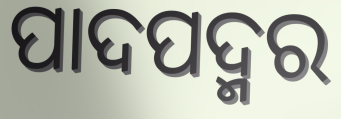
ପାଦପଦ୍ମର